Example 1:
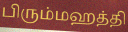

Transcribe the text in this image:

பிரும்மஹத்தி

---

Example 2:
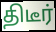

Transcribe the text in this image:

திடீர்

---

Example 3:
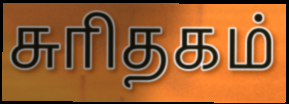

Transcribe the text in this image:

சுரிதகம்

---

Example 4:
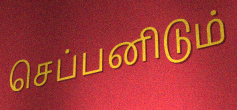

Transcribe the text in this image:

செப்பனிடும்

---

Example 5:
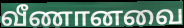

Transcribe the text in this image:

வீணானவை